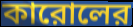
কারোলের